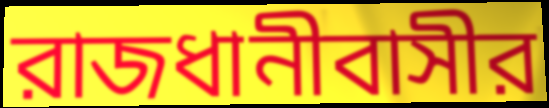
রাজধানীবাসীর